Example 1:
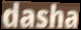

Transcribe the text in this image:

dasha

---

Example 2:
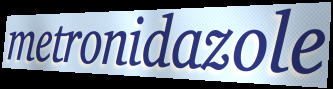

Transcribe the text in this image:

metronidazole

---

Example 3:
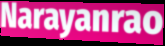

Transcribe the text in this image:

Narayanrao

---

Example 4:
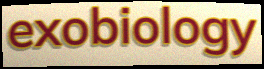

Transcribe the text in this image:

exobiology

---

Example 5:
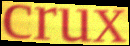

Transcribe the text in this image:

crux